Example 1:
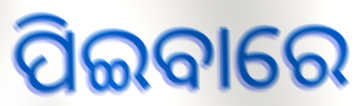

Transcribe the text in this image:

ପିଇବାରେ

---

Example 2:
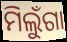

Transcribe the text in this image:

ମିଲୁଁଗା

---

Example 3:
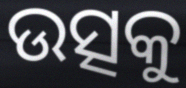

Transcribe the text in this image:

ଉତ୍ସକୁ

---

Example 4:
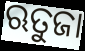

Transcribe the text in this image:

ଋତୁଜା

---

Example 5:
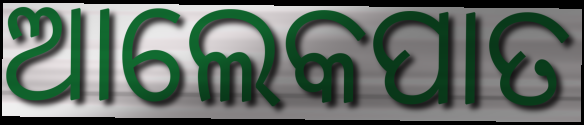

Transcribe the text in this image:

ଆଲେକପାତ